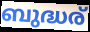
ബുദ്ധര്